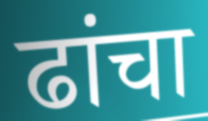
ढांचा